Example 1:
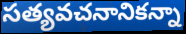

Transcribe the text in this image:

సత్యవచనానికన్నా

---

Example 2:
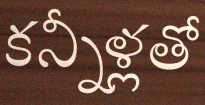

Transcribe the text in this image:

కన్నీళ్లతో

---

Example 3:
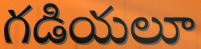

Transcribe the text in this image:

గడియలూ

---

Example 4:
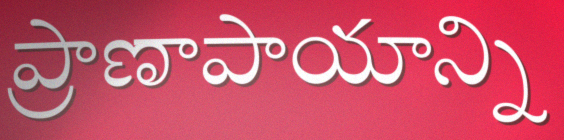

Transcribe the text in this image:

ప్రాణాపాయాన్ని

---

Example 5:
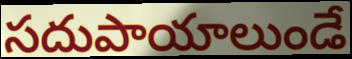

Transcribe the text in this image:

సదుపాయాలుండే